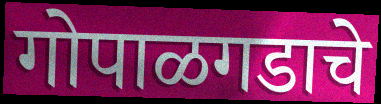
गोपाळगडाचे